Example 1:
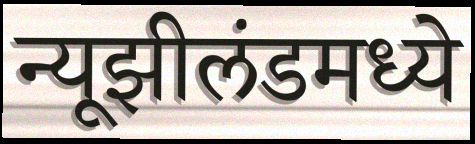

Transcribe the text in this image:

न्यूझीलंडमध्ये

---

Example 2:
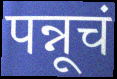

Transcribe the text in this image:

पन्नूचं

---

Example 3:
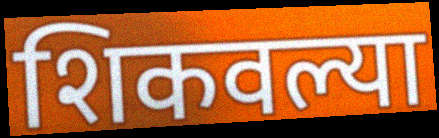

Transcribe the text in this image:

शिकवल्या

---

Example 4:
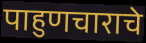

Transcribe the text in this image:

पाहुणचाराचे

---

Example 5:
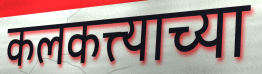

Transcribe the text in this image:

कलकत्त्याच्या